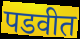
पडवीत